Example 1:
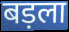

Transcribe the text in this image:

बड़ला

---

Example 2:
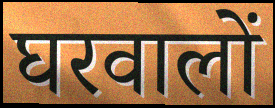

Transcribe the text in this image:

घरवालों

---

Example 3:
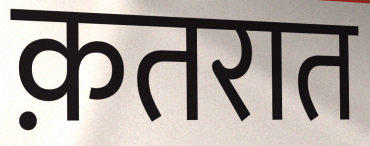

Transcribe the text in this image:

क़तरात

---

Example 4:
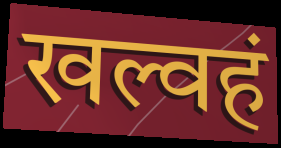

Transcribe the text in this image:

खल्वहं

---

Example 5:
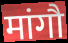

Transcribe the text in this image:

मांगौ